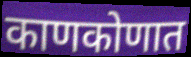
काणकोणात